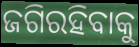
ଜଗିରହିବାକୁ